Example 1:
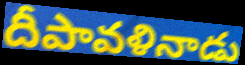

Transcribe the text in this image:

దీపావళినాడు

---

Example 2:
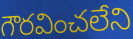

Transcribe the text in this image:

గౌరవించలేని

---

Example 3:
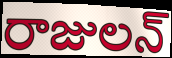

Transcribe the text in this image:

రాజులన్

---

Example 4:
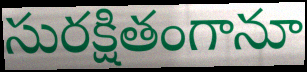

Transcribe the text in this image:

సురక్షితంగానూ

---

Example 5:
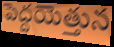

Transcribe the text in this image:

పెద్దయెత్తున